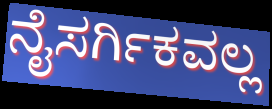
ನೈಸರ್ಗಿಕವಲ್ಲ